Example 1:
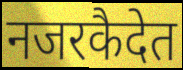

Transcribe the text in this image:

नजरकैदेत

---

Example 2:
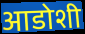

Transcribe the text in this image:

आडोशी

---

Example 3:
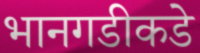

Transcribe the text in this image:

भानगडीकडे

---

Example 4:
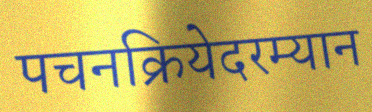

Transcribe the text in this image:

पचनक्रियेदरम्यान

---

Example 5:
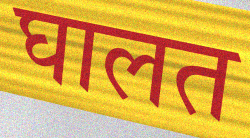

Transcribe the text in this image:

घालत